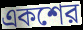
একশের